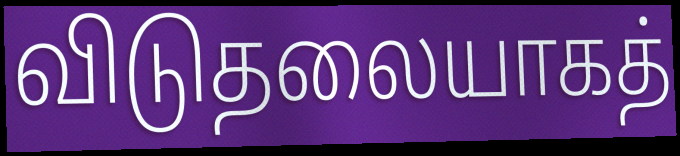
விடுதலையாகத்